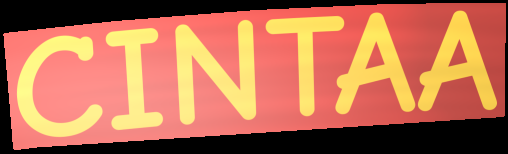
CINTAA